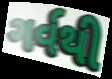
ગર્વથી